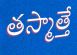
తస్మాత్తే